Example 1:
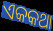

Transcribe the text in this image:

ଏକକଥା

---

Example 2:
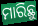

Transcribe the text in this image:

ମାରିଛୁ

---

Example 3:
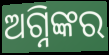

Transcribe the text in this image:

ଅଗ୍ନିଙ୍କର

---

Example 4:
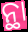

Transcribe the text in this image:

ନ୍ଥା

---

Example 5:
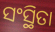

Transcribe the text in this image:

ସଂସ୍ଥିତା